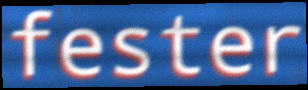
fester